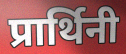
प्रार्थिनी